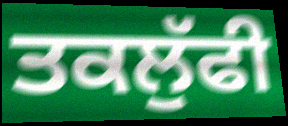
ਤਕਲੁੱਫੀ